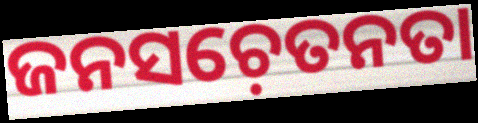
ଜନସଚ଼େତନତା